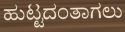
ಹುಟ್ಟದಂತಾಗಲು